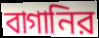
বাগানির